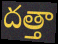
దత్తా